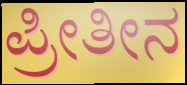
ಪ್ರೀತೀನ